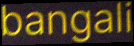
bangali